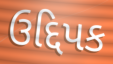
ઉદ્દિપક